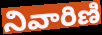
నివారిణి